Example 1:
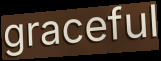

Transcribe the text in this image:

graceful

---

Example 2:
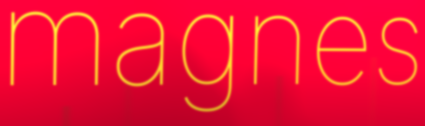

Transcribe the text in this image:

magnes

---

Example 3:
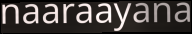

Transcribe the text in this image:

naaraayana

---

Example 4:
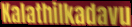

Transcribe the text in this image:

Kalathilkadavu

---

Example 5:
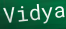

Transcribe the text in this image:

Vidya